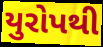
યુરોપથી